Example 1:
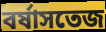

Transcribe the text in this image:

বর্ষাসতেজ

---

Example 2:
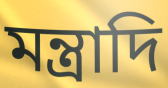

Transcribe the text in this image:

মন্ত্রাদি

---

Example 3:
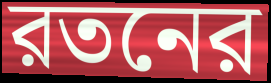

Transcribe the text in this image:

রতনের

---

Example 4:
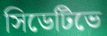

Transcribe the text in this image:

সিডেটিভে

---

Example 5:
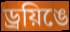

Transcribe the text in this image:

ড্রয়িঙে